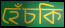
হেঁচকি